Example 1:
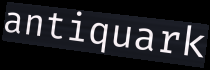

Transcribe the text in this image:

antiquark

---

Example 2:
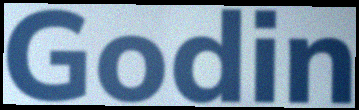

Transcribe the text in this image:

Godin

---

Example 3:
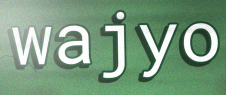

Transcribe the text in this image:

wajyo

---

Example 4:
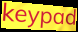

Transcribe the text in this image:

keypad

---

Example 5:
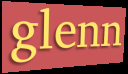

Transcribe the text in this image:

glenn